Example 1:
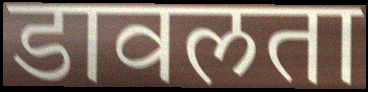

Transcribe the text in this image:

डावलता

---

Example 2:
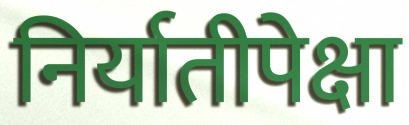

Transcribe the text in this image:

निर्यातीपेक्षा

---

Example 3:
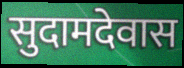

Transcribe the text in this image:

सुदामदेवास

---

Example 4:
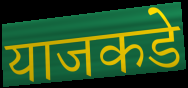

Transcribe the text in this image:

याजकडे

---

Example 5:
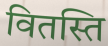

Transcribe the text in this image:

वितस्ति